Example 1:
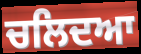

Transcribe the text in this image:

ਚਲਿਦਆ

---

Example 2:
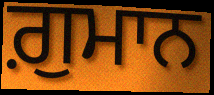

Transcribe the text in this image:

ਗ਼ੁਮਾਨ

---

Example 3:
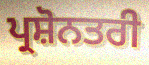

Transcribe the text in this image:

ਪ੍ਰਸ਼ੋਨਤਰੀ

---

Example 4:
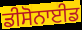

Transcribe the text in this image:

ਡੀਸੋਨਾਈਡ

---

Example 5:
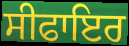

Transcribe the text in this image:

ਸੀਫਾਇਰ